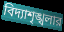
বিদ্যাশৃঙ্খলার